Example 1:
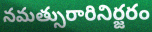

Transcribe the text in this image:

నమత్సురారినిర్జరం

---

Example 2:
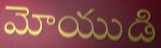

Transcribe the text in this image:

మోయుడి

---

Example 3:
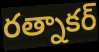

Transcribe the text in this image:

రత్నాకర్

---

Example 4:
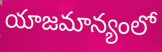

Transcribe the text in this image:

యాజమాన్యంలో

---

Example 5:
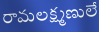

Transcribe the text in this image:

రామలక్ష్మణులే